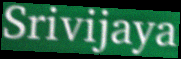
Srivijaya